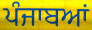
ਪੰਜਾਬਆਂ